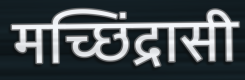
मच्छिंद्रासी